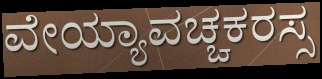
ವೇಯ್ಯಾವಚ್ಚಕರಸ್ಸ